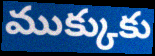
ముక్కుకు